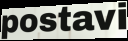
postavi